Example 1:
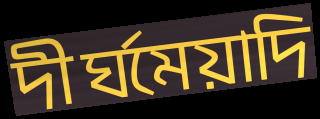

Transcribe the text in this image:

দীর্ঘমেয়াদি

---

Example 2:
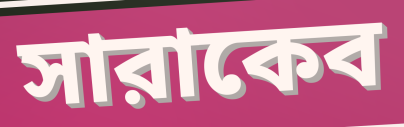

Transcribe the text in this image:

সারাকেব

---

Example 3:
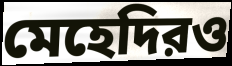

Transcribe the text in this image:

মেহেদিরও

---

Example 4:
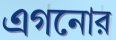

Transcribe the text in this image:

এগনোর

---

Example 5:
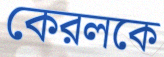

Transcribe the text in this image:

কেরলকে